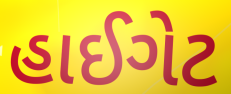
હાઈગેટ